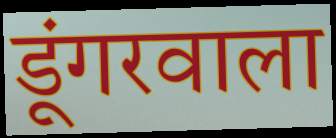
डूंगरवाला